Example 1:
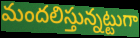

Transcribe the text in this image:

మందలిస్తున్నట్టుగా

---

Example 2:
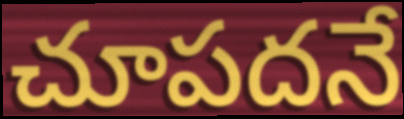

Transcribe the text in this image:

చూపదనే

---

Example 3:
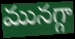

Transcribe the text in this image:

మునగ్గా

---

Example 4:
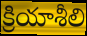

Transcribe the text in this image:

క్రియాశీలి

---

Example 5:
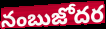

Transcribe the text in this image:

నంబుజోదర